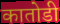
कातोडी